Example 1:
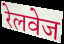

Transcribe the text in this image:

रेलवेज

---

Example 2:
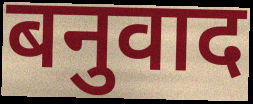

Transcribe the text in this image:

बनुवाद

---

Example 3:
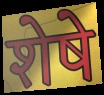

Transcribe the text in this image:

शेषे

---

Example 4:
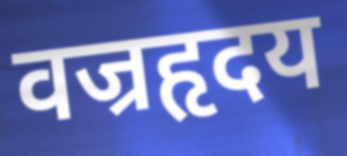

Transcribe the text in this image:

वज्रहृदय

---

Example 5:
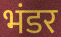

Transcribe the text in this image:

भंडर